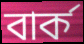
বার্ক